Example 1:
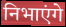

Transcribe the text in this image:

निभाएंगे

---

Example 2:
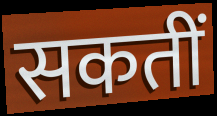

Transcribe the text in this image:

सकतीं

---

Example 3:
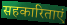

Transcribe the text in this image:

सहकारिताएं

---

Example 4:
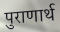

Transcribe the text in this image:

पुराणार्थ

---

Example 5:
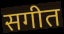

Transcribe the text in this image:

सगीत